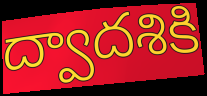
ద్వాదశికి